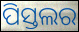
ପିସ୍ତଲର